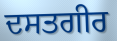
ਦਸਤਗੀਰ